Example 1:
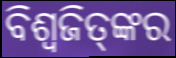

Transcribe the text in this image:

ବିଶ୍ଵଜିତ୍‌ଙ୍କର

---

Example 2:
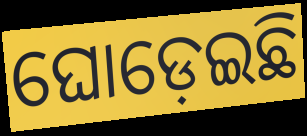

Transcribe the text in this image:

ଘୋଡ଼େଇଛି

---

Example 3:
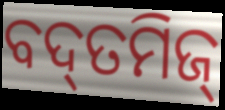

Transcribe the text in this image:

ବଦ୍‌ତମିଜ୍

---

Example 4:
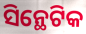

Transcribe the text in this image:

ସିନ୍ଥେଟିକ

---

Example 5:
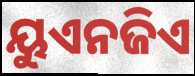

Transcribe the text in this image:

ୟୁଏନଜିଏ